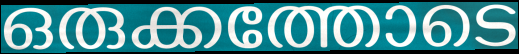
ഒരുക്കത്തോടെ